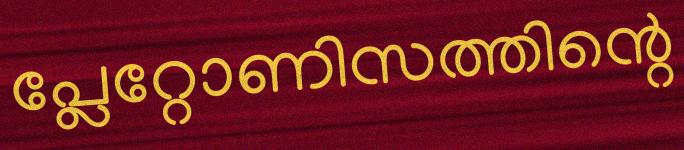
പ്ലേറ്റോണിസത്തിന്റെ